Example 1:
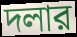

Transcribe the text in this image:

দলার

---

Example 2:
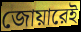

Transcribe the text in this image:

জোয়ারেই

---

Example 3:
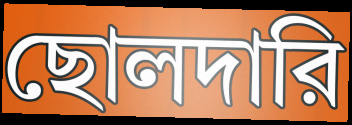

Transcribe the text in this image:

ছোলদারি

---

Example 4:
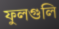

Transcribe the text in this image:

ফুলগুলি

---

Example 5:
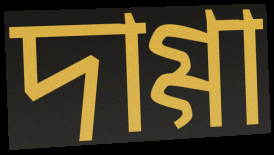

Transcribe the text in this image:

দাগ্গা